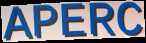
APERC